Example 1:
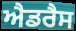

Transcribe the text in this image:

ਐਡਰੈਸ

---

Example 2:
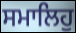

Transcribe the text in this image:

ਸਮਾਲਿਹੁ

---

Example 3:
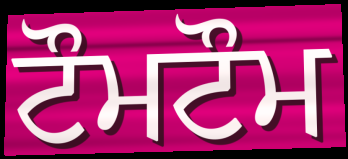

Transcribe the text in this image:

ਟੌਮਟੌਮ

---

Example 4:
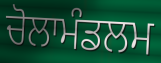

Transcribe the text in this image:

ਚੋਲਾਮੰਡਲਮ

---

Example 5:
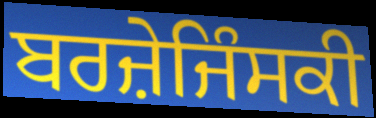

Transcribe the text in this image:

ਬਰਜ਼ੇਜਿੰਸਕੀ